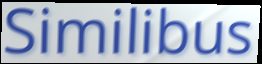
Similibus